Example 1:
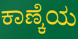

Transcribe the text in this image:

ಕಾಣ್ಕೆಯ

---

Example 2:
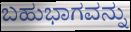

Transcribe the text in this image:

ಬಹುಭಾಗವನ್ನು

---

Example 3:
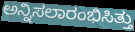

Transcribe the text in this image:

ಅನ್ನಿಸಲಾರಂಭಿಸಿತ್ತು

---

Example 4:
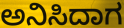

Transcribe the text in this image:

ಅನಿಸಿದಾಗ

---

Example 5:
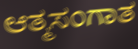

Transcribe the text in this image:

ಆತ್ಮಸಂಗಾತ